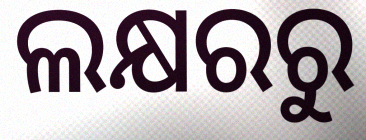
ଲକ୍ଷରରୁ